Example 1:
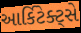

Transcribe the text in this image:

આર્કિટેક્ટ્સે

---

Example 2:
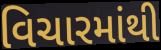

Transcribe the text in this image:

વિચારમાંથી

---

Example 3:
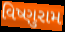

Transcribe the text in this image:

વિષ્ણુરામ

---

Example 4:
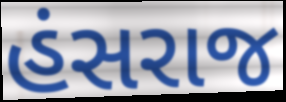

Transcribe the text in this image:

હંસરાજ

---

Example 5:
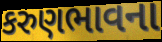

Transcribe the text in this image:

કરુણભાવના